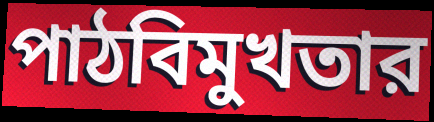
পাঠবিমুখতার